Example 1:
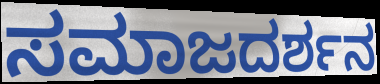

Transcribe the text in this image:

ಸಮಾಜದರ್ಶನ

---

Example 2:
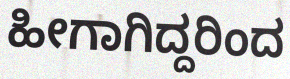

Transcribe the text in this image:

ಹೀಗಾಗಿದ್ದರಿಂದ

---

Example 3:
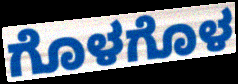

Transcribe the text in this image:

ಗೊಳಗೊಳ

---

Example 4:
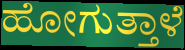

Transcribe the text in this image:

ಹೋಗುತ್ತಾಳೆ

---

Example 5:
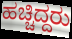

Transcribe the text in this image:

ಹಚ್ಚಿದ್ದರು